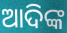
ଆଦିଙ୍କ